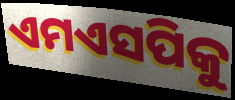
ଏମଏସପିକୁ